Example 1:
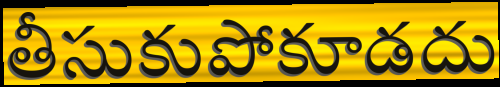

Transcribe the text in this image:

తీసుకుపోకూడదు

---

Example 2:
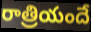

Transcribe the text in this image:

రాత్రియందే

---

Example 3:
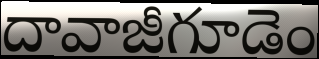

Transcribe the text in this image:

దావాజీగూడెం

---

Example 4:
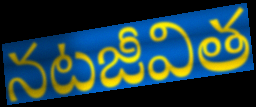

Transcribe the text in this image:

నటజీవిత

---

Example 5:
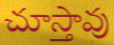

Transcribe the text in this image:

చూస్తావు